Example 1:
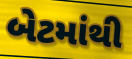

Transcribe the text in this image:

બેટમાંથી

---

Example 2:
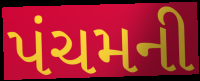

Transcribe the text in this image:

પંચમની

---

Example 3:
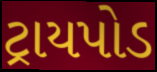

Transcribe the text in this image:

ટ્રાયપોડ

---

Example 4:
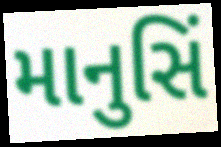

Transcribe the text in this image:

માનુસિં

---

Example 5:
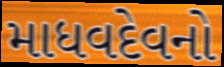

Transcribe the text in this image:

માધવદેવનો